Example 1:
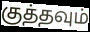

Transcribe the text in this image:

குத்தவும்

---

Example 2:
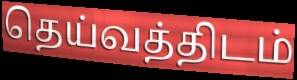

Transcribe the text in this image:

தெய்வத்திடம்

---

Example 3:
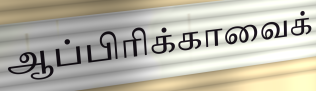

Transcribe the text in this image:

ஆப்பிரிக்காவைக்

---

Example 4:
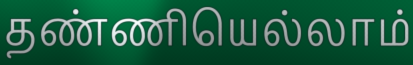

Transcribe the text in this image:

தண்ணியெல்லாம்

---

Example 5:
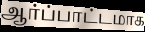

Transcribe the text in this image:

ஆர்ப்பாட்டமாக